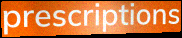
prescriptions